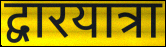
द्वारयात्रा